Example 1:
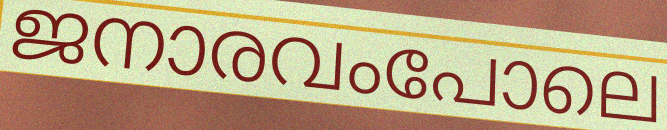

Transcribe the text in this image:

ജനാരവംപോലെ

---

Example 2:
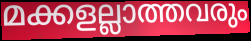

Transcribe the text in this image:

മക്കളല്ലാത്തവരും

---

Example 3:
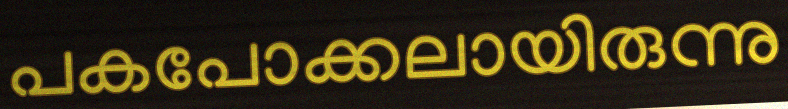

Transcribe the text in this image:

പകപോക്കലായിരുന്നു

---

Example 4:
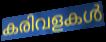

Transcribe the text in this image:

കരിവളകൾ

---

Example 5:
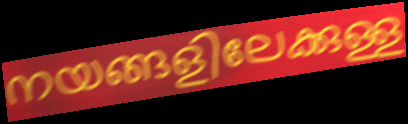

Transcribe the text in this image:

നയങ്ങളിലേക്കുള്ള